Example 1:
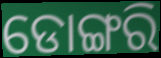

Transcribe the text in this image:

ଡୋଙ୍ଗରି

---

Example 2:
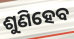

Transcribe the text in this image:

ଶୁଣିହେବ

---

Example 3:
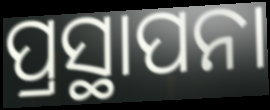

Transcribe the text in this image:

ପ୍ରସ୍ଥାପନା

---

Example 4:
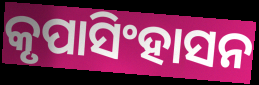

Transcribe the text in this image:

କୃପାସିଂହାସନ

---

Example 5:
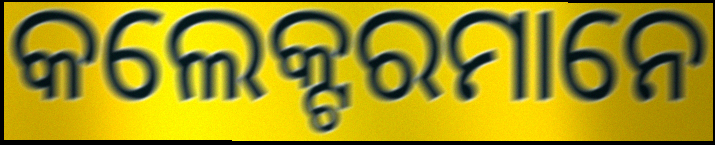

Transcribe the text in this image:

କଲେକ୍ଟରମାନେ